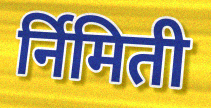
र्निमिती